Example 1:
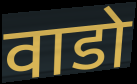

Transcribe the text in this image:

वाडो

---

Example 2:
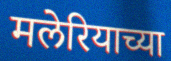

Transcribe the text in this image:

मलेरियाच्या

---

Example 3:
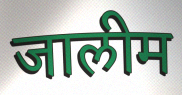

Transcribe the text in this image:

जालीम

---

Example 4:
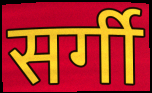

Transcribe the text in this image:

सर्गी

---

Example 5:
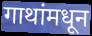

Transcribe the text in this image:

गाथांमधून